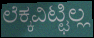
ಲೆಕ್ಕವಿಟ್ಟಿಲ್ಲ